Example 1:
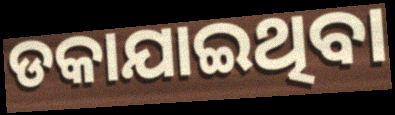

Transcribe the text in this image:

ଡକାଯାଇଥିବା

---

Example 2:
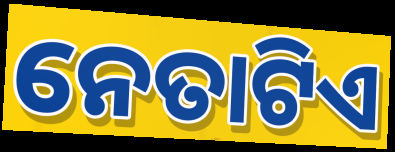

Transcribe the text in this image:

ନେତାଟିଏ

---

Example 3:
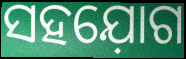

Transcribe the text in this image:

ସହଯ଼ୋଗ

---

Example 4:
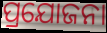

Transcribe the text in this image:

ପ୍ରଯୋଜନା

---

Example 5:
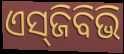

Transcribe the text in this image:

ଏସ୍‌ଜିବିଭି